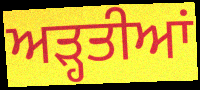
ਅੜ੍ਹਤੀਆਂ